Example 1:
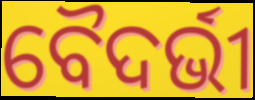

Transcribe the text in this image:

ବୈଦର୍ଭୀ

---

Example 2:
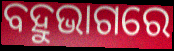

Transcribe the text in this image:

ବହୁଭାଗରେ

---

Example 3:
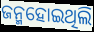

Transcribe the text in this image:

ଜନ୍ମହୋଇଥିଲି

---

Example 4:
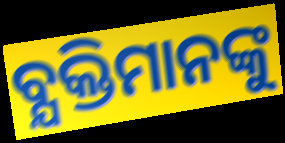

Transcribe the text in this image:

ବ୍ଯକ୍ତିମାନଙ୍କୁ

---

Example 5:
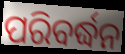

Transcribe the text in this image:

ପରିବର୍ଦ୍ଧନ